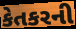
કેતકરની